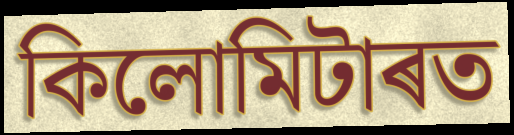
কিলোমিটাৰত